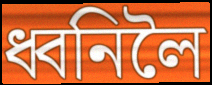
ধ্বনিলৈ